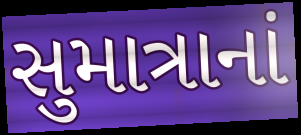
સુમાત્રાનાં